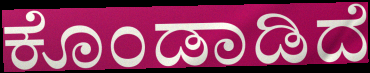
ಕೊಂಡಾಡಿದೆ